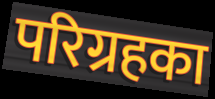
परिग्रहका